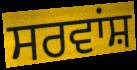
ਸਰਵਾਂਸ਼